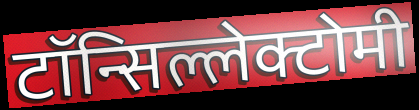
टॉन्सिल्लेक्टोमी